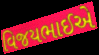
વિજયભાઈએ